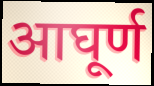
आघूर्ण